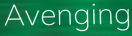
Avenging